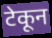
टेकून